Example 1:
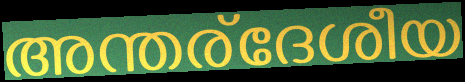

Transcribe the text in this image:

അന്തര്ദേശീയ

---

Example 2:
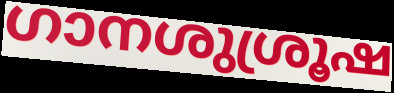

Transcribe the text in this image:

ഗാനശുശ്രൂഷ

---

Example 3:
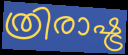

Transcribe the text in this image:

ത്രിരാഷ്ട്ര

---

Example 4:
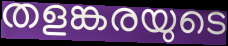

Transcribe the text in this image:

തളങ്കരയുടെ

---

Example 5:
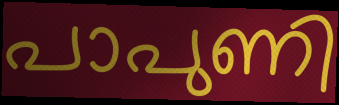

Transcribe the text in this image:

പാപുണി